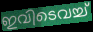
ഇവിടെവച്ച്